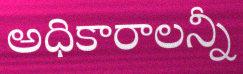
అధికారాలన్నీ